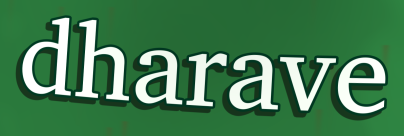
dharave